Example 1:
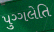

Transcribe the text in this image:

પુગ્ગલેતિ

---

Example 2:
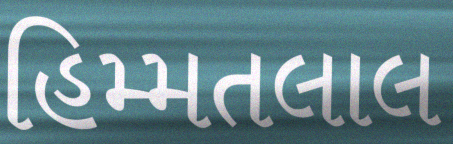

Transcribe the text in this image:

હિમ્મતલાલ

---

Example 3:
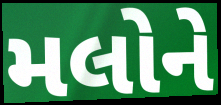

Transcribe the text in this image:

મલોને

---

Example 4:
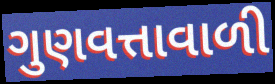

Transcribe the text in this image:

ગુણવત્તાવાળી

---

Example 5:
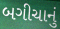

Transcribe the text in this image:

બગીચાનું